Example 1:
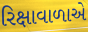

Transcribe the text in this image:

રિક્ષાવાળાએ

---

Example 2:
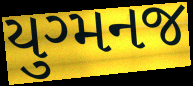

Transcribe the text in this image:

યુગ્મનજ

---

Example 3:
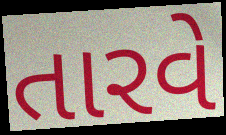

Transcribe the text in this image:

તારવે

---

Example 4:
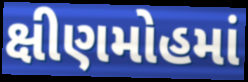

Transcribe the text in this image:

ક્ષીણમોહમાં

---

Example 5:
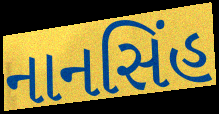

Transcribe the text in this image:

નાનસિંહ